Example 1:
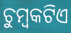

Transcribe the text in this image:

ଚୁମ୍ବକଟିଏ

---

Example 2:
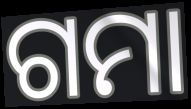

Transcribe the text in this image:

ଗମା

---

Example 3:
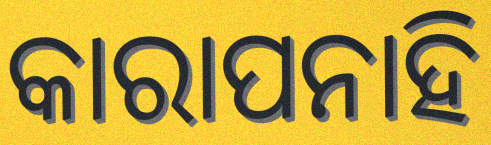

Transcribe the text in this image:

କାରାପନାହି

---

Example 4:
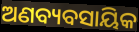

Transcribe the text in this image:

ଅଣବ୍ୟବସାୟିକ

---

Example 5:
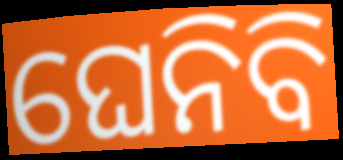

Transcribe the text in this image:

ଘେନିବି